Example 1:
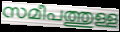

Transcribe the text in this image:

സമീപത്തുള്ള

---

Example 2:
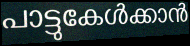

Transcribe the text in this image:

പാട്ടുകേൾക്കാൻ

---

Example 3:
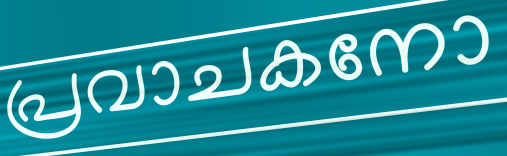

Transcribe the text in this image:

പ്രവാചകനോ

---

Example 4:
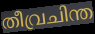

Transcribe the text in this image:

തീവ്രചിന്ത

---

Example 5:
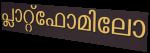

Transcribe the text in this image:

പ്ലാറ്റ്ഫോമിലോ